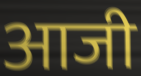
आजी